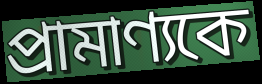
প্রামাণ্যকে